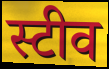
स्टीव